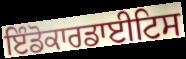
ਇੰਡੋਕਾਰਡਾਈਟਿਸ